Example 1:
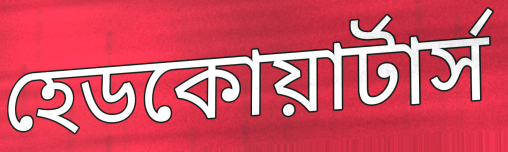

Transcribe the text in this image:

হেডকোয়ার্টার্স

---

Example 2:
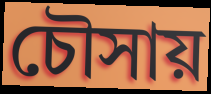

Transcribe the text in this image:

চৌসায়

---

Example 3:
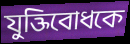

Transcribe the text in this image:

যুক্তিবোধকে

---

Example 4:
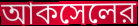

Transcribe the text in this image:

আকসেলের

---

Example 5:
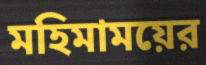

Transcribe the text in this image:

মহিমাময়ের